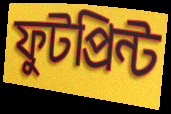
ফুটপ্রিন্ট